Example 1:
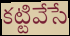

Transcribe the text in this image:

కట్టివేసే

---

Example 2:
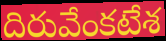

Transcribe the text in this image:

దిరువేంకటేశ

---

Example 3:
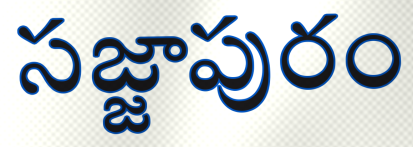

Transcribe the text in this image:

సజ్జాపురం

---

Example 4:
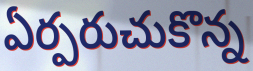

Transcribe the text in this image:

ఏర్పరుచుకొన్న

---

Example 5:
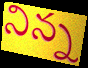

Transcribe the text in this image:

నిన్న